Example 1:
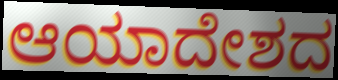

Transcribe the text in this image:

ಆಯಾದೇಶದ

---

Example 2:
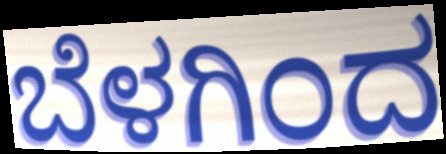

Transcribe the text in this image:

ಬೆಳಗಿಂದ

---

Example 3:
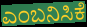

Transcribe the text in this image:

ಎಂಬನಿಸಿಕೆ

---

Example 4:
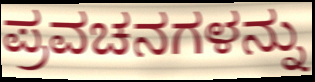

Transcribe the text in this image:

ಪ್ರವಚನಗಳನ್ನು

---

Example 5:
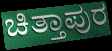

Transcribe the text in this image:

ಚಿತ್ತಾಪುರ